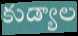
కుడ్యాల